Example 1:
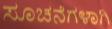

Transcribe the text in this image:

ಸೂಚನೆಗಳಾಗಿ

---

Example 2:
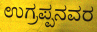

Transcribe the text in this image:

ಉಗ್ರಪ್ಪನವರ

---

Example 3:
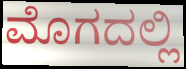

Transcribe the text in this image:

ಮೊಗದಲ್ಲಿ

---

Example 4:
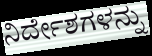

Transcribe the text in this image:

ನಿರ್ದೇಶಗಳನ್ನು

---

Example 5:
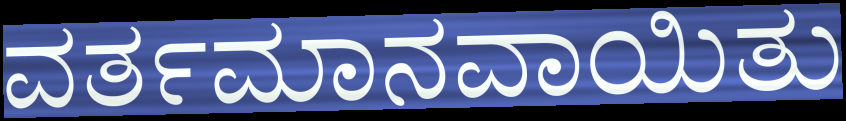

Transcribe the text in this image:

ವರ್ತಮಾನವಾಯಿತು